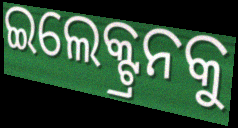
ଇଲେକ୍ଟ୍ରନକୁ